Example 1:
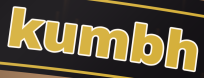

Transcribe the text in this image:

kumbh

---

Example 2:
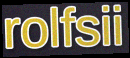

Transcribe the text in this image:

rolfsii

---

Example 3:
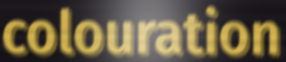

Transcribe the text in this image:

colouration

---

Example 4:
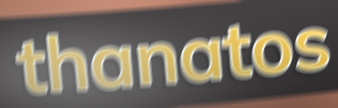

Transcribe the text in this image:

thanatos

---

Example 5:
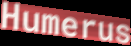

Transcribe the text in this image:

Humerus